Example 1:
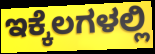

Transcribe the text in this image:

ಇಕ್ಕೆಲಗಳಲ್ಲಿ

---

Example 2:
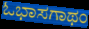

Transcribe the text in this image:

ಓಭಾಸಗಾಥಂ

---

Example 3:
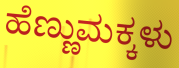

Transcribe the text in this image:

ಹೆಣ್ಣುಮಕ್ಕಳು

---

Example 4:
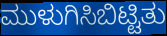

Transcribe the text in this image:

ಮುಳುಗಿಸಿಬಿಟ್ಟಿತು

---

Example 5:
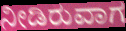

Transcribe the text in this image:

ನೀಡಿರುವಾಗ